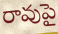
రావుపై